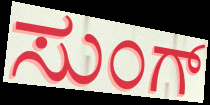
ಸುಂಗ್